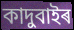
কাদুবাইৰ